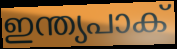
ഇന്ത്യപാക്